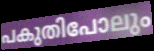
പകുതിപോലും